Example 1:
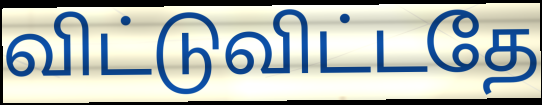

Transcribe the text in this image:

விட்டுவிட்டதே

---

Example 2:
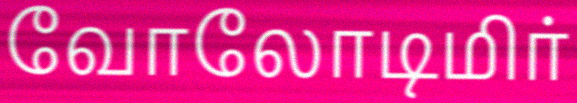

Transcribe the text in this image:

வோலோடிமிர்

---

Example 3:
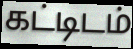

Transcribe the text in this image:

கட்டிடம்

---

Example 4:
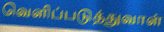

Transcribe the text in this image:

வெளிப்படுத்துவாள்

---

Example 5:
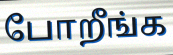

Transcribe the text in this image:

போறீங்க